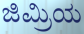
ಜಿಮ್ರಿಯ